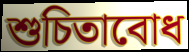
শুচিতাবোধ